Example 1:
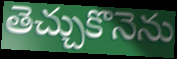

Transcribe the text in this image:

తెచ్చుకొనెను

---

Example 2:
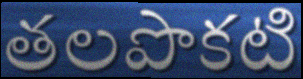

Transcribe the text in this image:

తలపొకటి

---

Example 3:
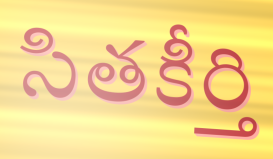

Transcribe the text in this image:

సితకీర్తి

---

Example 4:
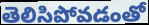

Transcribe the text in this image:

తెలిసిపోవడంతో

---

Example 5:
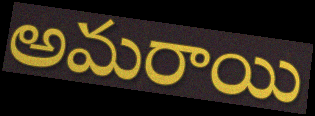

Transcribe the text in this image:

అమరాయి